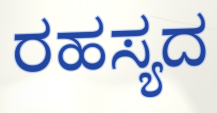
ರಹಸ್ಯದ